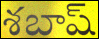
శబాష్